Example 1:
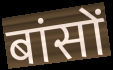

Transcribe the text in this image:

बांसों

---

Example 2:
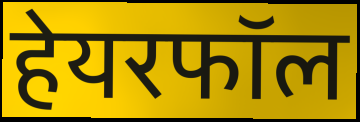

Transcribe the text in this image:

हेयरफॉल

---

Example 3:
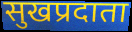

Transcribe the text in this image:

सुखप्रदाता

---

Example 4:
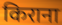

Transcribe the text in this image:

किराना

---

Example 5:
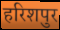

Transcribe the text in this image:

हरिशपुर